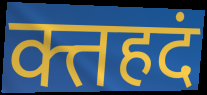
क्तहदं